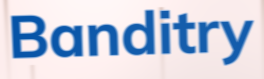
Banditry